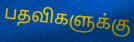
பதவிகளுக்கு